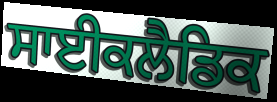
ਸਾਈਕਲੈਡਿਕ